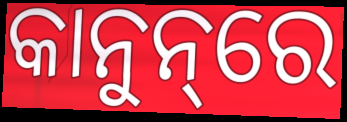
କାନୁନ୍‌ରେ